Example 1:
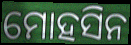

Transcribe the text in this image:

ମୋହସିନ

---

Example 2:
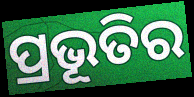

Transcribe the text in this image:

ପ୍ରଭୂତିର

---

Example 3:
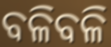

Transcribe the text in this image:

ବଳିବଳି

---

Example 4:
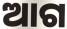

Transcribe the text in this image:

ଆଗ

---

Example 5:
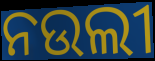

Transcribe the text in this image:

ନଉଲୀ